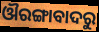
ଔରଙ୍ଗାବାଦରୁ